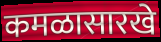
कमळासारखे